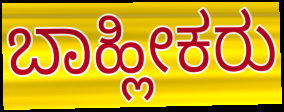
ಬಾಹ್ಲೀಕರು